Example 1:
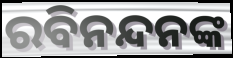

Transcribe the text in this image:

ରବିନନ୍ଦନଙ୍କ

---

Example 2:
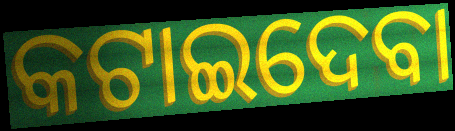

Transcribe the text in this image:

କଟାଇଦେବା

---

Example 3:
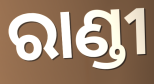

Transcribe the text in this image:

ରାଣ୍ଡୀ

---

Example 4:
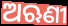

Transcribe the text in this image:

ଅଋଣୀ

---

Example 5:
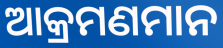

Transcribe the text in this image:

ଆକ୍ରମଣମାନ